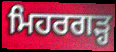
ਮਿਹਰਗੜ੍ਹ